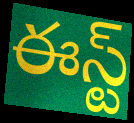
ఈస్ట్